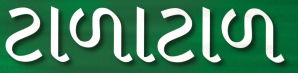
ટાળાટાળ